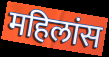
महिलांस